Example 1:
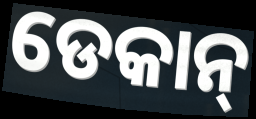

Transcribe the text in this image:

ଡେକାନ୍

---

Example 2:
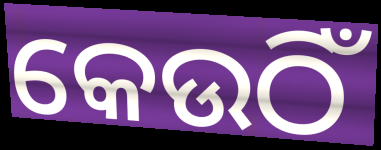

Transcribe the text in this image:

କେଉଠିଁ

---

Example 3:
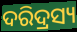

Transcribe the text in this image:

ଦରିଦ୍ରସ୍ୟ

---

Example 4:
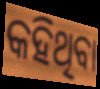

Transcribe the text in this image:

କହିଥିବା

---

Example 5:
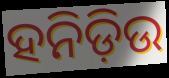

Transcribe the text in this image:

ହନିଡ଼ିଉ